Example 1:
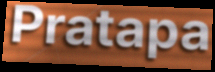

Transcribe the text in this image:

Pratapa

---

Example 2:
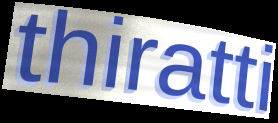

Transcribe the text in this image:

thiratti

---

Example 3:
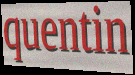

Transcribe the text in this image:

quentin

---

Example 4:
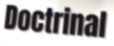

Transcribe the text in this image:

Doctrinal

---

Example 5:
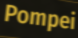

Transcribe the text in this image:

Pompei